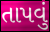
તાપવું